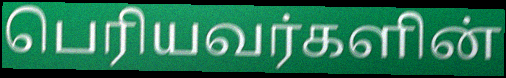
பெரியவர்களின்